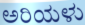
ಅರಿಯಳು